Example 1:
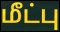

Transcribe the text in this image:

மீட்பு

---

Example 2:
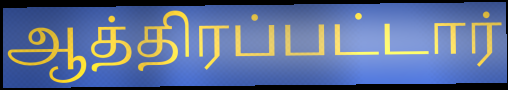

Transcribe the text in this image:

ஆத்திரப்பட்டார்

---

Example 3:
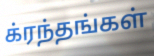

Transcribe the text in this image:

க்ரந்தங்கள்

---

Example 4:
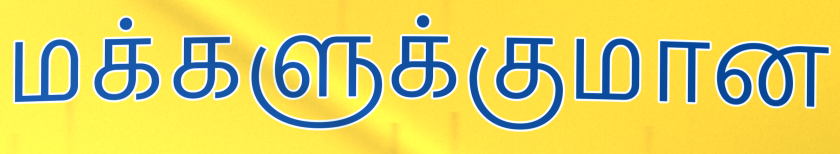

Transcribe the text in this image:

மக்களுக்குமான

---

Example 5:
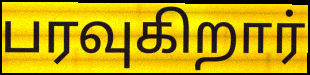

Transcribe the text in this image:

பரவுகிறார்